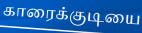
காரைக்குடியை